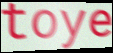
toye